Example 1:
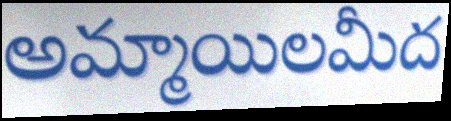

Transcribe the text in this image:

అమ్మాయిలమీద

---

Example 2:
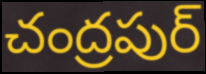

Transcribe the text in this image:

చంద్రపుర్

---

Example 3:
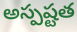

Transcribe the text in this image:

అస్పష్టత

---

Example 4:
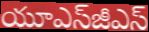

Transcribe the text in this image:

యూఎస్‌జీఎస్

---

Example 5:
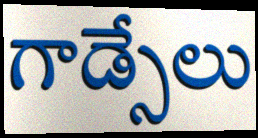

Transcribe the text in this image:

గాడ్సేలు